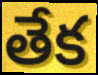
తేక